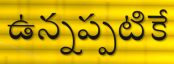
ఉన్నప్పటికే